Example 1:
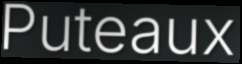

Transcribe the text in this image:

Puteaux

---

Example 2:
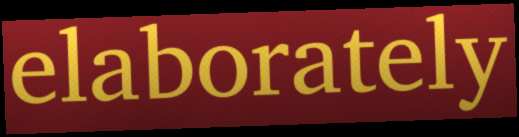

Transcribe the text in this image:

elaborately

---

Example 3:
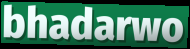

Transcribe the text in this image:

bhadarwo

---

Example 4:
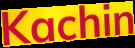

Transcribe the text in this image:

Kachin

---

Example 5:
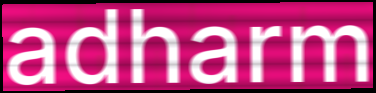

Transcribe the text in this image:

adharm